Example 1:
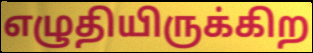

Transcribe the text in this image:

எழுதியிருக்கிற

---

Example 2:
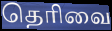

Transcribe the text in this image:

தெரிவை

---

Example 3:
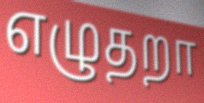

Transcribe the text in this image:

எழுதறா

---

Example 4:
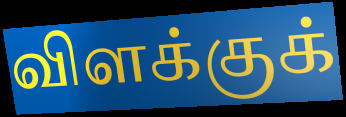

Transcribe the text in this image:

விளக்குக்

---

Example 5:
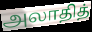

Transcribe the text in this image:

அலாதித்